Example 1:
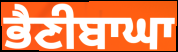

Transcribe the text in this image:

ਭੈਣੀਬਾਘਾ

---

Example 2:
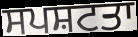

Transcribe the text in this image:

ਸਪਸ਼ਟਤਾ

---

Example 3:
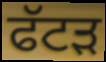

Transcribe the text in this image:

ਫੱਟੜ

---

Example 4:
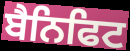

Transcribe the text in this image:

ਬੈਨਿਫਿਟ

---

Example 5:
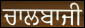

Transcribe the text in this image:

ਚਾਲਬਾਜੀ